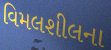
વિમલશીલના